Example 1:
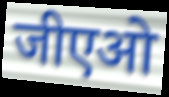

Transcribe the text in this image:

जीएओ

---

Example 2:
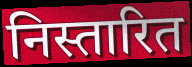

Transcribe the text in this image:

निस्तारित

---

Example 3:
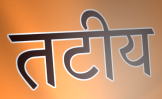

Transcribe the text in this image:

तटीय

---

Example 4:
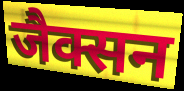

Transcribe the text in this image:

जैक्सन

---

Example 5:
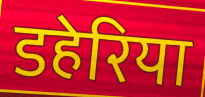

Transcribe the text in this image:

डहेरिया